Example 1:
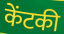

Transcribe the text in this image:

केंटकी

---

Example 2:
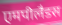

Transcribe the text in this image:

एमपीलैडस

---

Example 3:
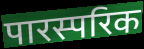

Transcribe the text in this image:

पारस्परिक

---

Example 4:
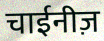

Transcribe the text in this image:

चाईनीज़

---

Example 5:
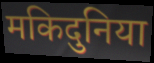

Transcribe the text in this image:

मकिदुनिया